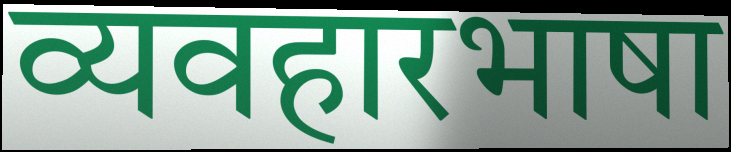
व्यवहारभाषा